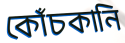
কোঁচকানি